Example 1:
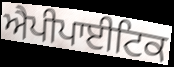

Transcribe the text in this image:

ਐਪੀਪਾਈਟਿਕ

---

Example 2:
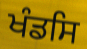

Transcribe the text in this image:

ਖੰਡਸਿ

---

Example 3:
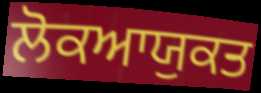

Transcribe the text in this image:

ਲੋਕਆਯੁਕਤ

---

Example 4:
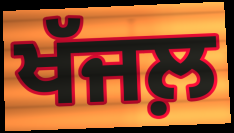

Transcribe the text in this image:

ਖੱਜਲ਼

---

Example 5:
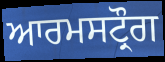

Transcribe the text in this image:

ਆਰਮਸਟ੍ਰੌਗ